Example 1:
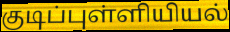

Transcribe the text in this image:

குடிப்புள்ளியியல்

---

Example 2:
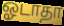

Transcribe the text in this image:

ஓடாதா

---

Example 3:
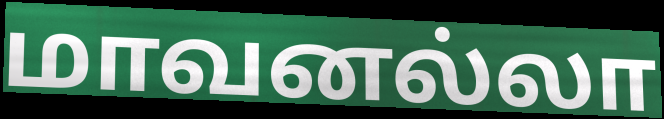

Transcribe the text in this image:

மாவனல்லா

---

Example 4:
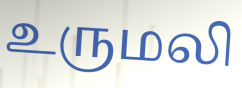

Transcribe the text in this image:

உருமலி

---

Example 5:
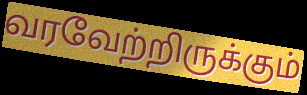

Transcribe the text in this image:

வரவேற்றிருக்கும்